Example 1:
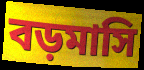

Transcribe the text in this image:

বড়মাসি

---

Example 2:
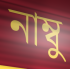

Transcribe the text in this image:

নাম্বু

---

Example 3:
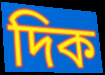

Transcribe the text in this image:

দিক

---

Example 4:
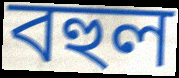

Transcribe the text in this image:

বহুল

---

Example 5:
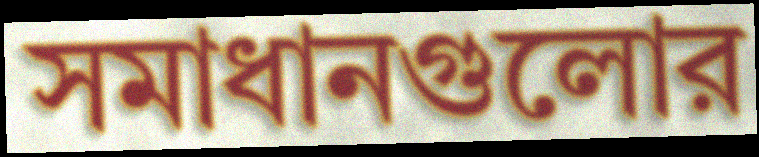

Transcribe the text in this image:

সমাধানগুলোর